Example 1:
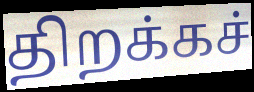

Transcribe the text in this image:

திறக்கச்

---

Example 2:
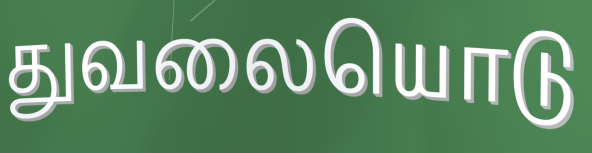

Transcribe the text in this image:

துவலையொடு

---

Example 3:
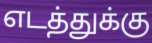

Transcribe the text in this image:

எடத்துக்கு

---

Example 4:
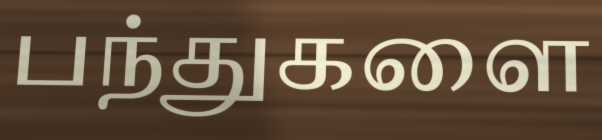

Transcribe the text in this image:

பந்துகளை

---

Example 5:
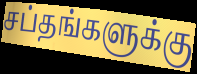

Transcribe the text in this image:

சப்தங்களுக்கு